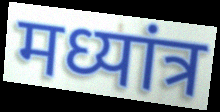
मध्यांत्र